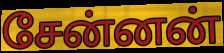
சேன்னன்